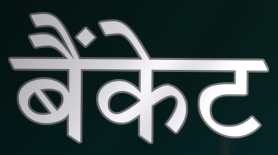
बैंकेट